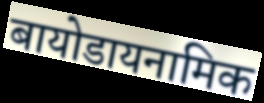
बायोडायनामिक